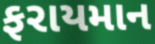
ફરાયમાન